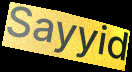
Sayyid